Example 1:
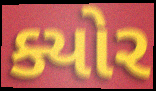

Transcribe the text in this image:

ક્યોર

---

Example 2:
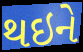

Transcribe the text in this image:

થઇને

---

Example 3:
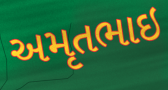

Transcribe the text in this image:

અમૃતભાઇ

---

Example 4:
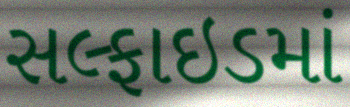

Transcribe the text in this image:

સલ્ફાઇડમાં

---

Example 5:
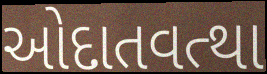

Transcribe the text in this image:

ઓદાતવત્થા